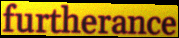
furtherance